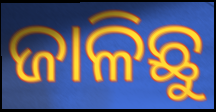
ଜାଳିଛୁ